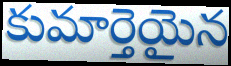
కుమార్తెయైన